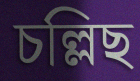
চল্লিছ